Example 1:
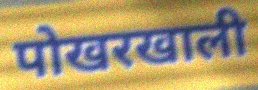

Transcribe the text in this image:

पोखरखाली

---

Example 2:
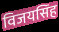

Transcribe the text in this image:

विजयसिंह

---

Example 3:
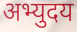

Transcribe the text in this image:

अभ्युदय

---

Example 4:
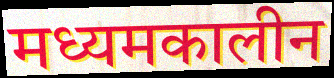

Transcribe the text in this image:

मध्यमकालीन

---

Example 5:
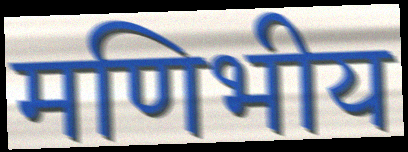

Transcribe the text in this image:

मणिभीय